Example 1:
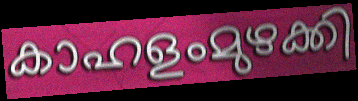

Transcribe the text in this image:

കാഹളംമുഴക്കി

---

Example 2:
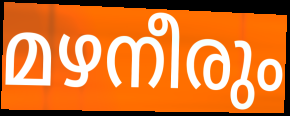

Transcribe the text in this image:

മഴനീരും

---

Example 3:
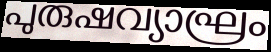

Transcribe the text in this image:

പുരുഷവ്യാഘ്രം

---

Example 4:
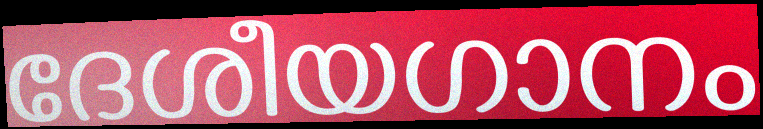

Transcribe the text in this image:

ദേശീയഗാനം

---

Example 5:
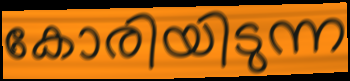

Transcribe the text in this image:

കോരിയിടുന്ന